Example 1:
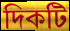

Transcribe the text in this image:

দিকটি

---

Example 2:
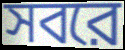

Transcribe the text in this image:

সবরে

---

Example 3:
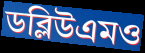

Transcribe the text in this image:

ডব্লিউএমও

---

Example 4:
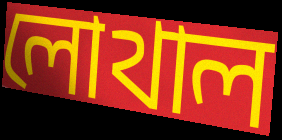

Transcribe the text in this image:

লোথাল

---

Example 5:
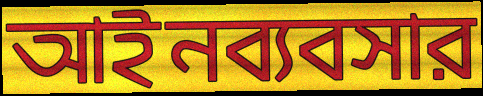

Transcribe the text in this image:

আইনব্যবসার